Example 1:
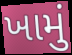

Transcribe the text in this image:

ખામું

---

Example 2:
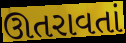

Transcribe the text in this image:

ઊતરાવતાં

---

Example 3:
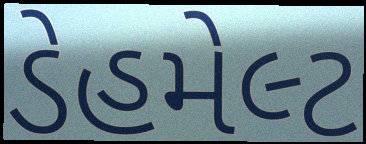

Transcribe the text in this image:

ડેહમેલ્ટ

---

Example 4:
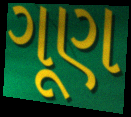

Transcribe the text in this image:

ગૂણ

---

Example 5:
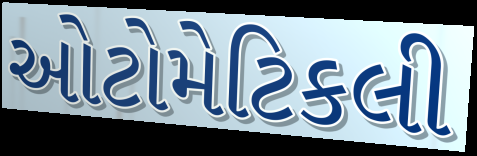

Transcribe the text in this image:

ઓટોમેટિકલી